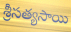
శ్రీసత్యసాయి